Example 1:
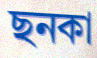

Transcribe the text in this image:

ছনকা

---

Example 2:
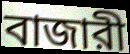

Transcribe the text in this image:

বাজারী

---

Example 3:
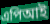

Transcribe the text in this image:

এপিআই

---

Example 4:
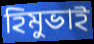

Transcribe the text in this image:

হিমুভাই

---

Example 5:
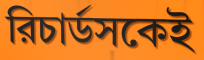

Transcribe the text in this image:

রিচার্ডসকেই